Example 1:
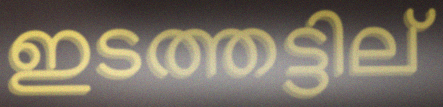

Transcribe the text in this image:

ഇടത്തട്ടില്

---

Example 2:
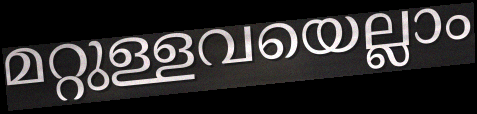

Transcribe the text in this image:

മറ്റുള്ളവയെല്ലാം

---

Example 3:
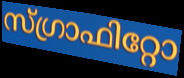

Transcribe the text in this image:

സ്ഗ്രാഫിറ്റോ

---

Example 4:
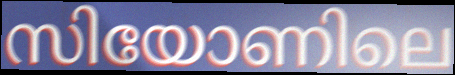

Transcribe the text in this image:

സിയോണിലെ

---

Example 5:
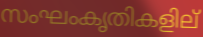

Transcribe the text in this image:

സംഘംകൃതികളില്